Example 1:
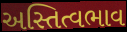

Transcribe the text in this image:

અસ્તિત્વભાવ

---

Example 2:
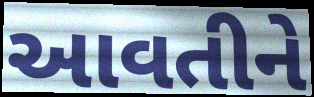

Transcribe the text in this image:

આવતીને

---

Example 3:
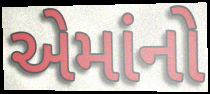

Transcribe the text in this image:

એમાંનો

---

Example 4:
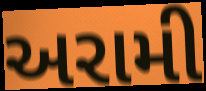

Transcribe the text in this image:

અરામી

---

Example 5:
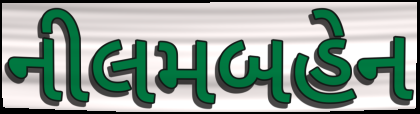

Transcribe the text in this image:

નીલમબહેન